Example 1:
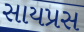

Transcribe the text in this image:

સાયપ્રસ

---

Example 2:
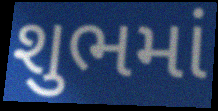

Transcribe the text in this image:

શુભમાં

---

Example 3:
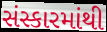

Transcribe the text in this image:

સંસ્કારમાંથી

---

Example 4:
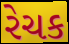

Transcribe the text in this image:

રેચક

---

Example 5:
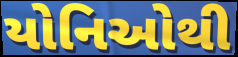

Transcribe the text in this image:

યોનિઓથી